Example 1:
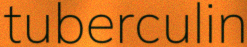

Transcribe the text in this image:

tuberculin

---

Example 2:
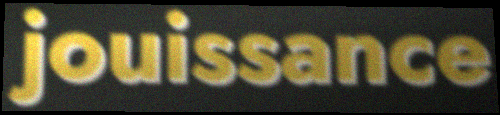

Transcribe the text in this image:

jouissance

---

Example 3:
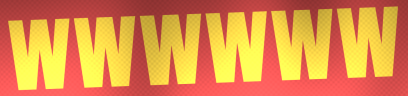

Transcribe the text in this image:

wwwwww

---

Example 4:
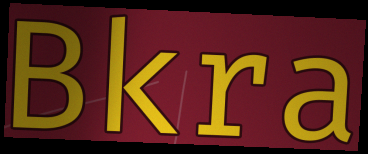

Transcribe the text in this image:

Bkra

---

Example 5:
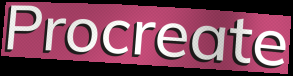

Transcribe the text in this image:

Procreate